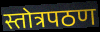
स्तोत्रपठण